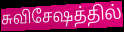
சுவிசேஷத்தில்